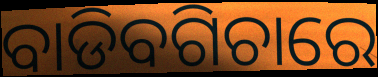
ବାଡିବଗିଚାରେ